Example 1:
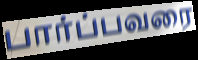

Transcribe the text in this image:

பார்ப்பவரை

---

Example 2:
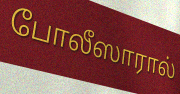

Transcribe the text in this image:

போலீஸாரால்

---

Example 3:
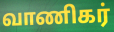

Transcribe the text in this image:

வாணிகர்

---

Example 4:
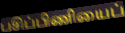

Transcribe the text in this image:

பசிப்பிணியைப்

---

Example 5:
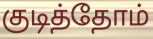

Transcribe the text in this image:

குடித்தோம்